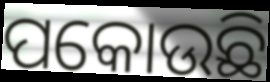
ପକୋଉଛି